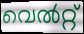
വെൽറ്റ്